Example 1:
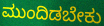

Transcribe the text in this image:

ಮುಂದಿಡಬೇಕು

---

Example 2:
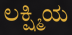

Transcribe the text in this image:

ಲಕ್ಷ್ಮಿಯ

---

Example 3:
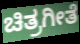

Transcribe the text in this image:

ಚಿತ್ರಗೀತೆ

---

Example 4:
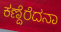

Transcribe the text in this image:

ಕಣ್ದೆರೆದನಾ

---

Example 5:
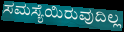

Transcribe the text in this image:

ಸಮಸ್ಯೆಯಿರುವುದಿಲ್ಲ